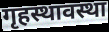
गृहस्थावस्था